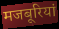
मजबूरियां